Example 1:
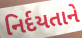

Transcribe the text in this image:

નિર્દયતાને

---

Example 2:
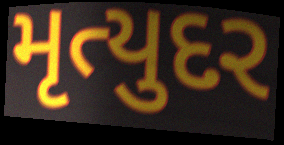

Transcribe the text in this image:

મૃત્યુદર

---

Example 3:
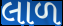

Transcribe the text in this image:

લાળ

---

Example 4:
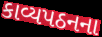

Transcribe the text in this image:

કાવ્યપઠનના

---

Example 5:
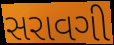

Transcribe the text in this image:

સરાવગી